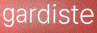
gardiste